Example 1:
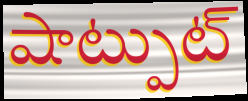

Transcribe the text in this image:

షాట్పుట్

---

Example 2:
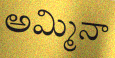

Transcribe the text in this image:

అమ్మినా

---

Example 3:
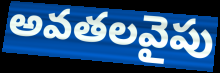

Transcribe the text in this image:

అవతలవైపు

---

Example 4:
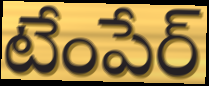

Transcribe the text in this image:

టేంపేర్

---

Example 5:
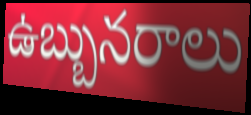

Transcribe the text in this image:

ఉబ్బునరాలు